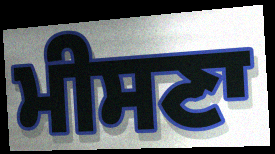
ਮੀਸਣਾ